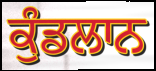
ਕੁੰਡਲਾਨ